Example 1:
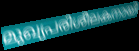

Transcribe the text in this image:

മുഖ്യപരിശീലകനായി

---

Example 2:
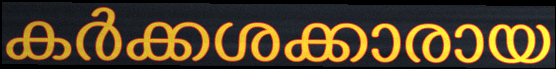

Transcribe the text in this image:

കർക്കശക്കാരായ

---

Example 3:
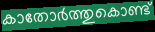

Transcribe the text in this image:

കാതോർത്തുകൊണ്ട്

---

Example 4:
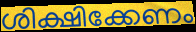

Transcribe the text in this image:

ശിക്ഷിക്കേണം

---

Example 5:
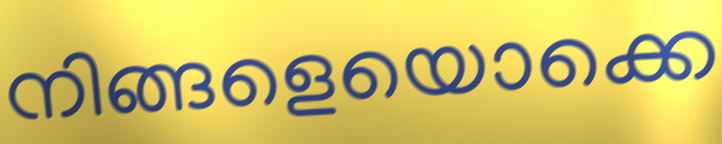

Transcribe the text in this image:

നിങ്ങളെയൊക്കെ